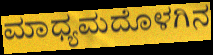
ಮಾಧ್ಯಮದೊಳಗಿನ